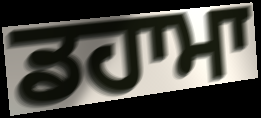
ਡਹਾਮਾ